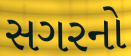
સગરનો